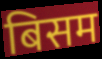
बिसम